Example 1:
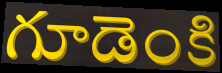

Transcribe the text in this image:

గూడెంకి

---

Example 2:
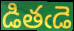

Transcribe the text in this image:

డితఁడె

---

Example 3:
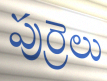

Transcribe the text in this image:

పుర్రెలు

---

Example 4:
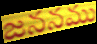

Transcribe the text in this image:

జననము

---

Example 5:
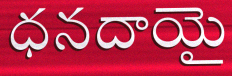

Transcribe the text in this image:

ధనదాయై